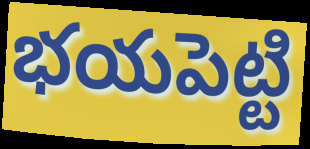
భయపెట్టి